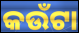
କଉଁଟା